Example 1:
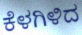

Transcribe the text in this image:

ಕೆಳಗಿಳಿದ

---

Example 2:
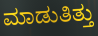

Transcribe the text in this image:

ಮಾಡುತಿತ್ತು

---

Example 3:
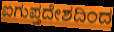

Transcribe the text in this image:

ಐಗುಪ್ತದೇಶದಿಂದ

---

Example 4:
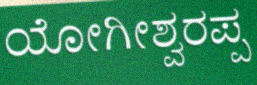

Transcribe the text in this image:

ಯೋಗೀಶ್ವರಪ್ಪ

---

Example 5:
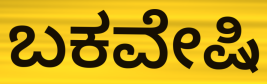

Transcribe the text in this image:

ಬಕವೇಷಿ